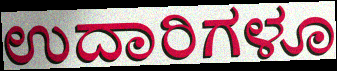
ಉದಾರಿಗಳೂ